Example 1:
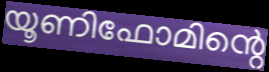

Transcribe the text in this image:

യൂണിഫോമിന്റെ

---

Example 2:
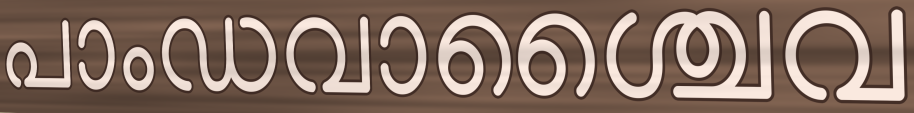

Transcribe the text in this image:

പാംഡവാശ്ചൈവ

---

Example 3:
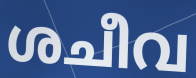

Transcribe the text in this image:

ശചീവ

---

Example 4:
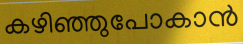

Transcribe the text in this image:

കഴിഞ്ഞുപോകാൻ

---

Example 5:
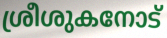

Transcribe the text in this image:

ശ്രീശുകനോട്